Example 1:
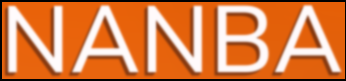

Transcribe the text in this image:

NANBA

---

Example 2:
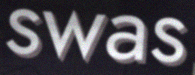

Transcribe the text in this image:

swas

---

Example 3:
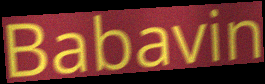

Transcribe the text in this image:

Babavin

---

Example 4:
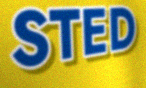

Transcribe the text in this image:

STED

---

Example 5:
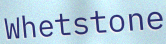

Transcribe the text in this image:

Whetstone